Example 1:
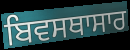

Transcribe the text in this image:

ਬਿਵਸਥਾਸਾਰ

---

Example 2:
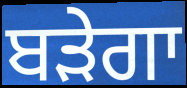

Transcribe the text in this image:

ਬੜੇਗਾ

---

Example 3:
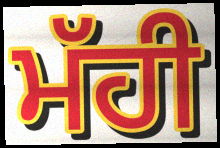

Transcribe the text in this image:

ਮੱਹੀ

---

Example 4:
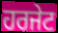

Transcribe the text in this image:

ਹਰਜੇਟ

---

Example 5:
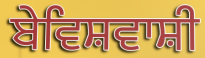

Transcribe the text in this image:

ਬੇਵਿਸ਼ਵਾਸ਼ੀ